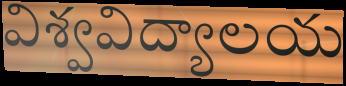
విశ్వవిద్యాలయ